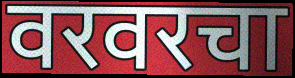
वरवरचा